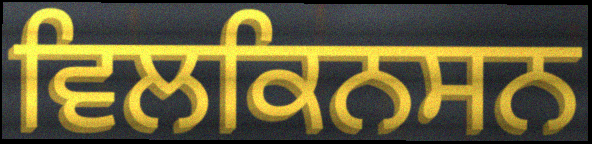
ਵਿਲਕਿਨਸਨ